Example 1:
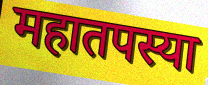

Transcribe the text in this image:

महातपस्या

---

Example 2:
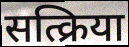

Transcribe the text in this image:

सत्क्रिया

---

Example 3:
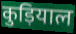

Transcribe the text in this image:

कुड़ियाल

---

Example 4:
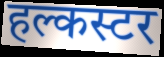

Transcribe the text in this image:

हल्कस्टर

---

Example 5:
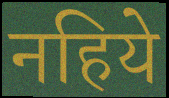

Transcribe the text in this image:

नहिये